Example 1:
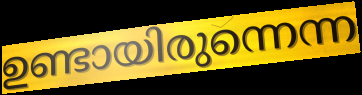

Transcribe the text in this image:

ഉണ്ടായിരുന്നെന്ന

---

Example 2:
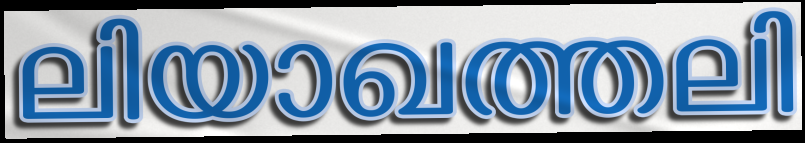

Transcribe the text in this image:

ലിയാഖത്തലി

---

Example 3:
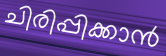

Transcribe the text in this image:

ചിരിപ്പിക്കാൻ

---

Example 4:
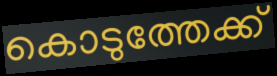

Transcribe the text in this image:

കൊടുത്തേക്ക്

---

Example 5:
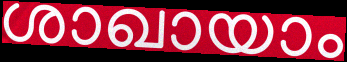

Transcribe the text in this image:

ശാഖായാം